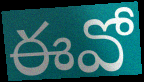
ఈవో